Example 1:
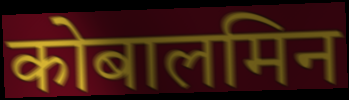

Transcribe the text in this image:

कोबालमिन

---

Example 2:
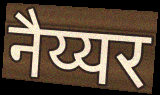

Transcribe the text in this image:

नैय्यर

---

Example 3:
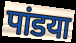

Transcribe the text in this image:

पांडया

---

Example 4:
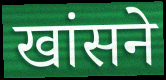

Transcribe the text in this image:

खांसने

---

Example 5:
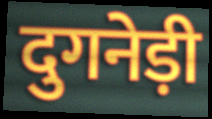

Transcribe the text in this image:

दुगनेड़ी